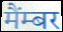
मैंम्बर